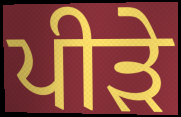
ਪੀੜੇ